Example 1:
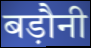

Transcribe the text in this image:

बड़ौनी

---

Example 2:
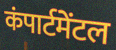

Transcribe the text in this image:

कंपार्टमेंटल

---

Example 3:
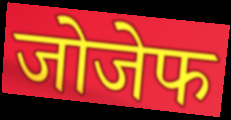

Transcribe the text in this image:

जोजेफ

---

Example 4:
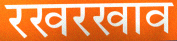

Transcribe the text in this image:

रखरखाव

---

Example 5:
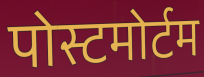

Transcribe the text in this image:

पोस्टमोर्टम